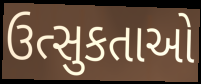
ઉત્સુકતાઓ